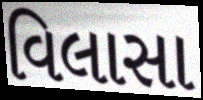
વિલાસા